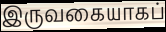
இருவகையாகப்